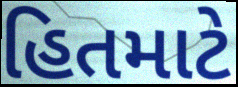
હિતમાટે